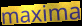
maxima